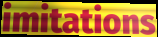
imitations